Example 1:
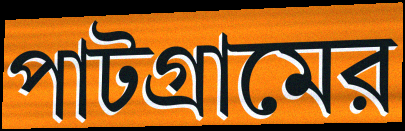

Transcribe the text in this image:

পাটগ্রামের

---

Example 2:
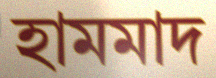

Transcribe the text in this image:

হামমাদ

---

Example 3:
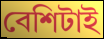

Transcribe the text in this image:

বেশিটাই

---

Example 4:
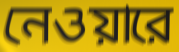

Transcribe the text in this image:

নেওয়ারে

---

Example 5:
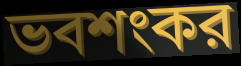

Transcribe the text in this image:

ভবশংকর